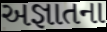
અજ્ઞાતના